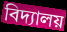
বিদ্যালয়